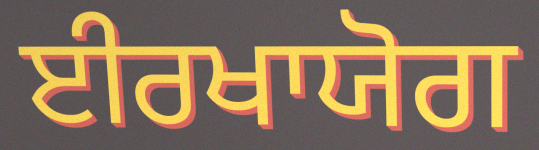
ਈਰਖਾਯੋਗ